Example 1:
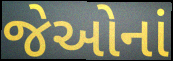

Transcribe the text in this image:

જેઓનાં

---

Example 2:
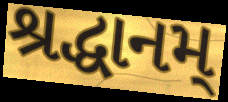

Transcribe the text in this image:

શ્રદ્ધાનમ્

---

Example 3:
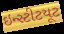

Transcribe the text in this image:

ઇન્સ્ટીટયૂટ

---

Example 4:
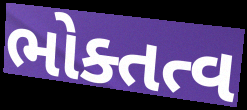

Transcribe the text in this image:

ભોક્તત્વ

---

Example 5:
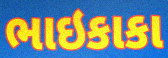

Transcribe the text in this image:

ભાઇકાકા